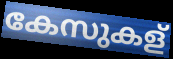
കേസുകള്